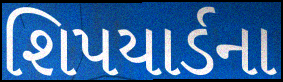
શિપયાર્ડના